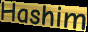
Hashim